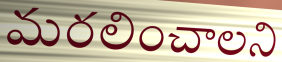
మరలించాలని